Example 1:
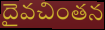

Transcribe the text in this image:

దైవచింతన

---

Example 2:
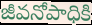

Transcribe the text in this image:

జీవనోపాధికి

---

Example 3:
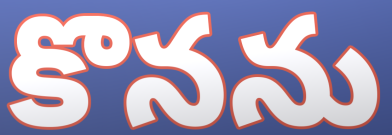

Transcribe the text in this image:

కొనను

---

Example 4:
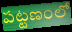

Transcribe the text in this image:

పట్టణంలో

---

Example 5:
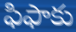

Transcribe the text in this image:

ఫిఫాకు